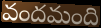
వందమంది